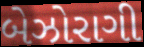
બેઝોરાગી